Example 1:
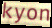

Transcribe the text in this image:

kyon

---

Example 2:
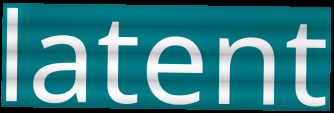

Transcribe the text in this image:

latent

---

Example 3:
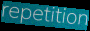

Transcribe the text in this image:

repetition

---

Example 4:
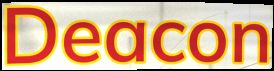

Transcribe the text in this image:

Deacon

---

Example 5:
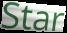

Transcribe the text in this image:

Star